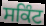
ਸਕਿੰਟ